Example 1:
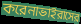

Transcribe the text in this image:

করেনাভাইরাসের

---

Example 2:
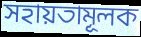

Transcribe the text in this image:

সহায়তামূলক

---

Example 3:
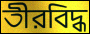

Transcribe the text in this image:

তীরবিদ্ধ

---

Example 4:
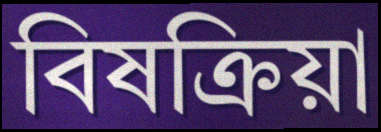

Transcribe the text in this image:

বিষক্রিয়া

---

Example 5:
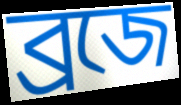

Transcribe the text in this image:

ব্রজে